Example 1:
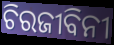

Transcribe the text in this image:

ଚିରଜୀବିନୀ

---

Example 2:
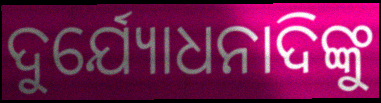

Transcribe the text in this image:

ଦୁର୍ଯ୍ୟୋଧନାଦିଙ୍କୁ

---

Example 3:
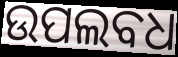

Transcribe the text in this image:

ଉପଲବଧ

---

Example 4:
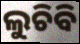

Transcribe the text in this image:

ଲୁଚିବି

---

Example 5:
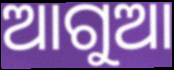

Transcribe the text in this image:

ଆଗୁଆ